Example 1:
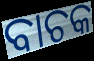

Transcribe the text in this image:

ବାଚକ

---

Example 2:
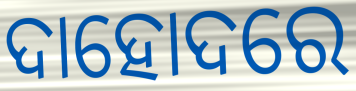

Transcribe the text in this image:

ଦାହୋଦରେ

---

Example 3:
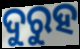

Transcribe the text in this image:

ଦୁରୁହ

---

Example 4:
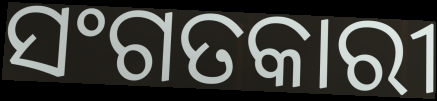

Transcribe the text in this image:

ସଂଗତକାରୀ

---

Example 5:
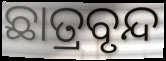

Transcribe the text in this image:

ଛାତ୍ରବୃନ୍ଦ